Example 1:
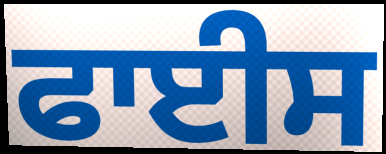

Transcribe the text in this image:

ਫਾਈਸ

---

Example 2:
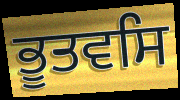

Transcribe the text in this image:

ਭੂਤਵਸਿ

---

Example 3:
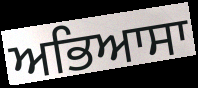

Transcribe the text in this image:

ਅਭਿਆਸਾ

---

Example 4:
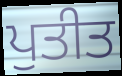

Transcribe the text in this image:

ਪੁਤੀਤ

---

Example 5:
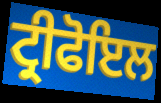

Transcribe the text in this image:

ਟ੍ਰੀਫੋਇਲ